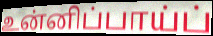
உன்னிப்பாய்ப்